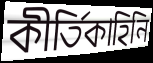
কীর্তিকাহিনি